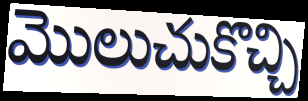
మొలుచుకొచ్చి